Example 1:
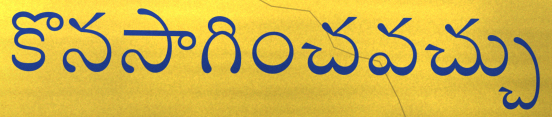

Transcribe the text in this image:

కొనసాగించవచ్చు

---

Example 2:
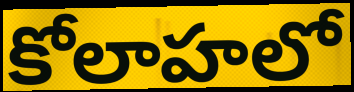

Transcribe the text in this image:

కోలాహలో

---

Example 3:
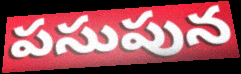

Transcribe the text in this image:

పసుపున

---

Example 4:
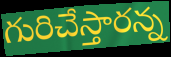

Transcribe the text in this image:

గురిచేస్తారన్న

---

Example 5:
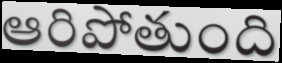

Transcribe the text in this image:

ఆరిపోతుంది